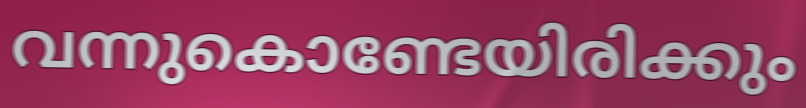
വന്നുകൊണ്ടേയിരിക്കും